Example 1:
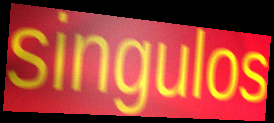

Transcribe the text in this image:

singulos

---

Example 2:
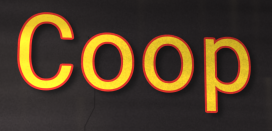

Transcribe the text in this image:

Coop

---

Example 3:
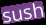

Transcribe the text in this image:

sush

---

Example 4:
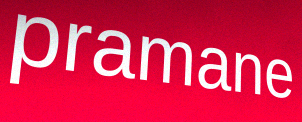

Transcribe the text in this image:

pramane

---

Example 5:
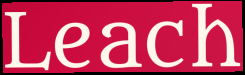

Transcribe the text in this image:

Leach